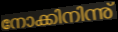
നോക്കിനിന്നു്